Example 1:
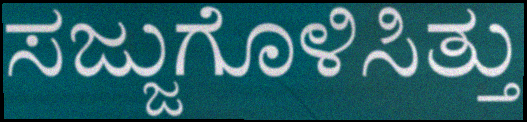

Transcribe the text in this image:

ಸಜ್ಜುಗೊಳಿಸಿತ್ತು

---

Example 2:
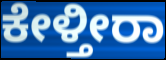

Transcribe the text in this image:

ಕೇಳ್ತೀರಾ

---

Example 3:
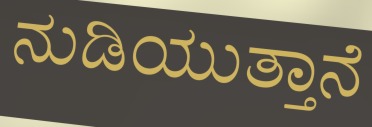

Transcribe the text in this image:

ನುಡಿಯುತ್ತಾನೆ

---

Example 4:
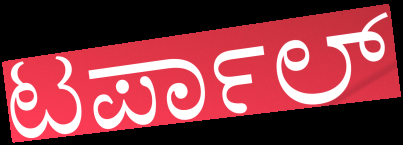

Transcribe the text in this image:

ಟರ್ಪಾಲ್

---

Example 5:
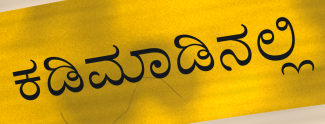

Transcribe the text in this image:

ಕಡಿಮಾಡಿನಲ್ಲಿ